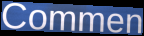
Commen